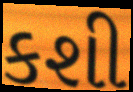
કશી